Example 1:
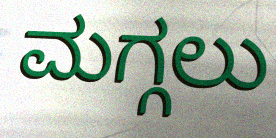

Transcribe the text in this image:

ಮಗ್ಗಲು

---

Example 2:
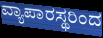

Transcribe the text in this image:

ವ್ಯಾಪಾರಸ್ಥರಿಂದ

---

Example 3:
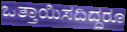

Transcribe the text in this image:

ಒತ್ತಾಯಿಸದಿದ್ದರೂ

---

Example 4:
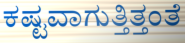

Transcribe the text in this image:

ಕಷ್ಟವಾಗುತ್ತಿತ್ತಂತೆ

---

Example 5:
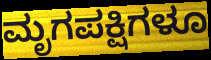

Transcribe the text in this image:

ಮೃಗಪಕ್ಷಿಗಳೂ